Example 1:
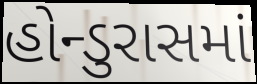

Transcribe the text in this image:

હોન્ડુરાસમાં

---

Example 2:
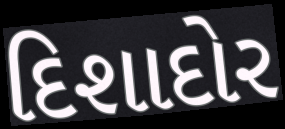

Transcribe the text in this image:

દિશાદોર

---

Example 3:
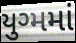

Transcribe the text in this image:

યુગ્મમાં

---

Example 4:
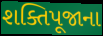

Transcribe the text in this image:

શક્તિપૂજાના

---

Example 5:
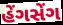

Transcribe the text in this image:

હેંગસેંગ